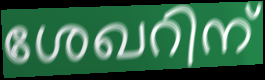
ശേഖറിന്